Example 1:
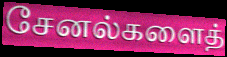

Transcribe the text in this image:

சேனல்களைத்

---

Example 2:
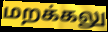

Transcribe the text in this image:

மறக்கலு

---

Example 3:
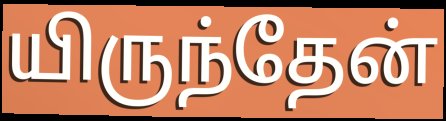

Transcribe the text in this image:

யிருந்தேன்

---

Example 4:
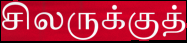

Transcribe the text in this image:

சிலருக்குத்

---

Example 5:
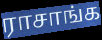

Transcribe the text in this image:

ராசாங்க